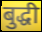
बुद्धी